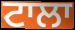
ਟਾਲਾ